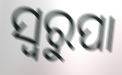
ସ୍ୱରୁପା